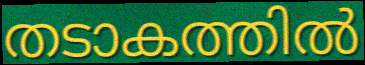
തടാകത്തിൽ